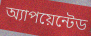
অ্যাপয়েন্টেড